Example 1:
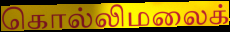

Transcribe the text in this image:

கொல்லிமலைக்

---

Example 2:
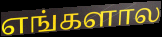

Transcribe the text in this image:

எங்களால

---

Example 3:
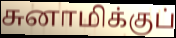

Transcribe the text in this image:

சுனாமிக்குப்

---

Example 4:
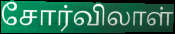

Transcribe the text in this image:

சோர்விலாள்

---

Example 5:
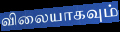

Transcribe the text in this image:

விலையாகவும்